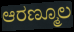
ಆರಣ್ಮೂಲ